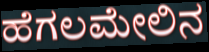
ಹೆಗಲಮೇಲಿನ